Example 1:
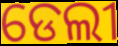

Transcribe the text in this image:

ଡେଲୀ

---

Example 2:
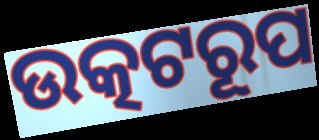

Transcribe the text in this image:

ଉତ୍କଟରୂପ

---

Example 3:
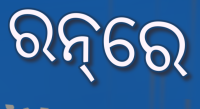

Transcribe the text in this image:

ରନ୍‌ରେ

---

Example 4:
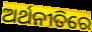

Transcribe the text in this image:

ଅର୍ଥନୀତିରେ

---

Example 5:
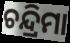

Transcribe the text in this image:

ଚନ୍ଦ୍ରିମା